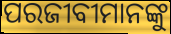
ପରଜୀବୀମାନଙ୍କୁ